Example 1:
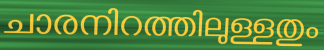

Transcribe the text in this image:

ചാരനിറത്തിലുള്ളതും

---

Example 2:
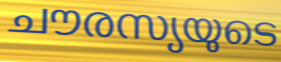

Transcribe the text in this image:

ചൗരസ്യയുടെ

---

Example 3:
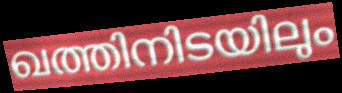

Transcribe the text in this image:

ഖത്തിനിടയിലും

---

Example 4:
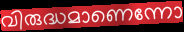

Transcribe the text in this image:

വിരുദ്ധമാണെന്നോ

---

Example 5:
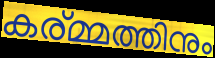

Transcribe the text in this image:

കര്മ്മത്തിനും